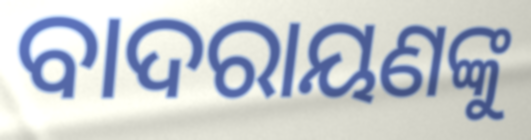
ବାଦରାୟଣଙ୍କୁ